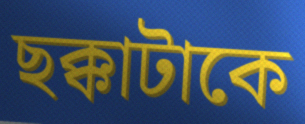
ছক্কাটাকে